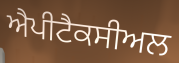
ਐਪੀਟੈਕਸੀਅਲ